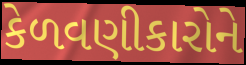
કેળવણીકારોને